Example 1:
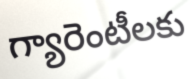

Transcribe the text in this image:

గ్యారెంటీలకు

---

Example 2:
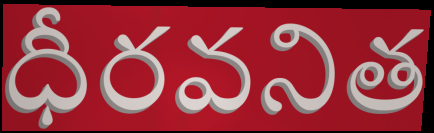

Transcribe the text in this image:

ధీరవనిత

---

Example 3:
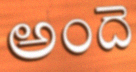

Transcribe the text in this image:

అందె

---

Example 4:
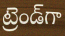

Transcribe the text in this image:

ట్రెండ్‌గా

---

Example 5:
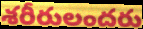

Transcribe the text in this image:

శరీరులందరు